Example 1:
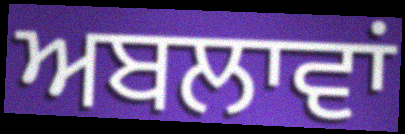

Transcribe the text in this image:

ਅਬਲਾਵਾਂ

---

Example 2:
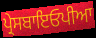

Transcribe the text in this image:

ਪ੍ਰੇਸਬਾਇਓਪੀਆ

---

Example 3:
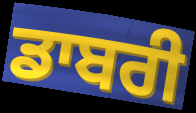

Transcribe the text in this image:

ਡਾਬਰੀ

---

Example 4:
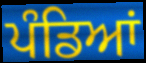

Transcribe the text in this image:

ਪੰਡਿਆਂ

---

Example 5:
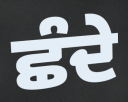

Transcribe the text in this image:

ਛੰਦੇ